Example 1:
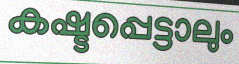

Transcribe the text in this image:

കഷ്ടപ്പെട്ടാലും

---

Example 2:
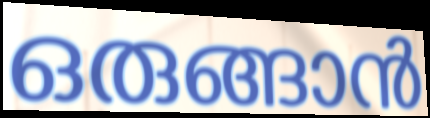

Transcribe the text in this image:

ഒരുങ്ങാൻ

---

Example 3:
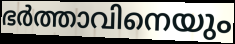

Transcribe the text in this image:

ഭർത്താവിനെയും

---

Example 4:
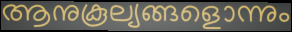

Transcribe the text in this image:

ആനുകൂല്യങ്ങളൊന്നും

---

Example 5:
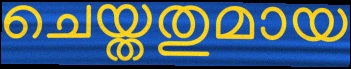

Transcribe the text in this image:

ചെയ്തതുമായ